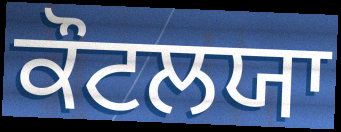
ਕੌਟਲਯਾ